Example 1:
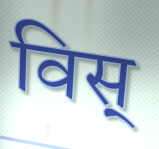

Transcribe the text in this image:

विस्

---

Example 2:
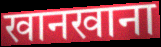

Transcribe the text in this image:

खानखाना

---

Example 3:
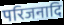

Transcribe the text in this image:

परिजनादि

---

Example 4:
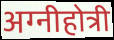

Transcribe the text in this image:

अग्नीहोत्री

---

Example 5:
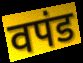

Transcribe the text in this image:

वपंड